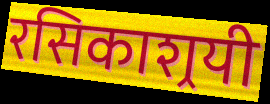
रसिकाश्रयी